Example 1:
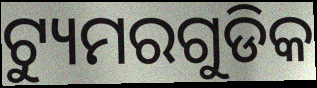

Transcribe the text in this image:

ଟ୍ୟୁମରଗୁଡିକ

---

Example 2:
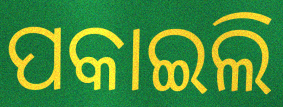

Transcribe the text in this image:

ପକାଇଲି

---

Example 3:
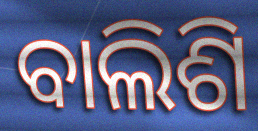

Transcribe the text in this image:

ବାଲିଶି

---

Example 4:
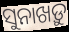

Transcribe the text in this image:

ସୁନାଖଡ଼ୁ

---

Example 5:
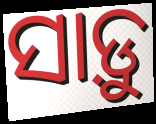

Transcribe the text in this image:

ସାଡ଼ୁ